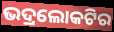
ଭଦ୍ରଲୋକଟିର